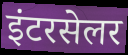
इंटरसेलर